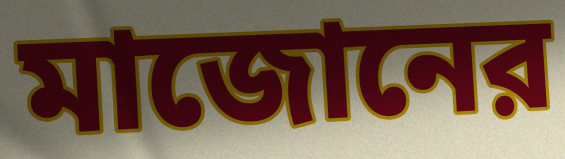
মাজোনের